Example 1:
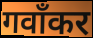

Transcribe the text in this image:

गवाँकर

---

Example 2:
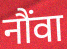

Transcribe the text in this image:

नौंवा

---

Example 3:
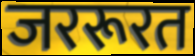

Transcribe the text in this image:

जररूरत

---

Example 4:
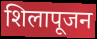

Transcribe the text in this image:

शिलापूजन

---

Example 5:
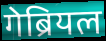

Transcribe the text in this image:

गेब्रियल